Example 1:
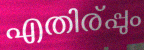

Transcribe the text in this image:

എതിര്പ്പും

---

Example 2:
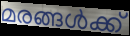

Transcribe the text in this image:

മരങ്ങൾക്ക്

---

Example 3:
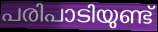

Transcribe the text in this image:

പരിപാടിയുണ്ട്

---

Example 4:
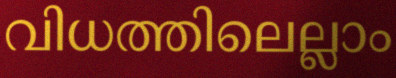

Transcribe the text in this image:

വിധത്തിലെല്ലാം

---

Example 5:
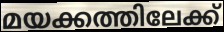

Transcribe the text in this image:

മയക്കത്തിലേക്ക്